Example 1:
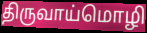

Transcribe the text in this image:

திருவாய்மொழி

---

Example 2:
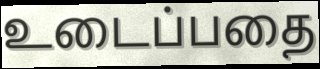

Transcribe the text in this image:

உடைப்பதை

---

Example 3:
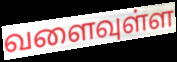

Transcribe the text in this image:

வளைவுள்ள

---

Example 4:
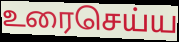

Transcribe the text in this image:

உரைசெய்ய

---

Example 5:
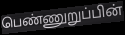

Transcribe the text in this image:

பெண்ணுறுப்பின்